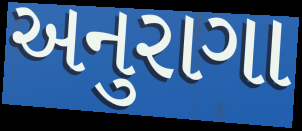
અનુરાગા